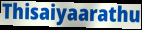
Thisaiyaarathu